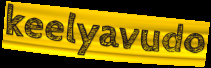
keelyavudo